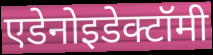
एडेनोइडेक्टॉमी